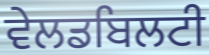
ਵੇਲਡਬਿਲਟੀ